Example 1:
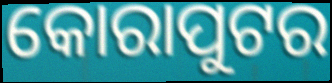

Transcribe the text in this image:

କୋରାପୁଟର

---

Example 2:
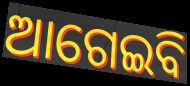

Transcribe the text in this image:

ଆଗେଇବି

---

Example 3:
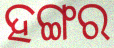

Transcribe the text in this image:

ହଙ୍ଗର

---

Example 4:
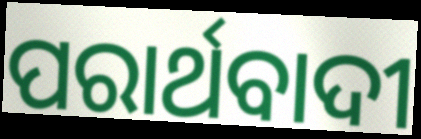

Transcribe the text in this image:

ପରାର୍ଥବାଦୀ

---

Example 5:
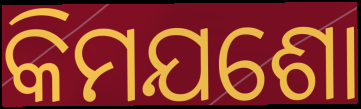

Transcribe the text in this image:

କିମଯଶୋ